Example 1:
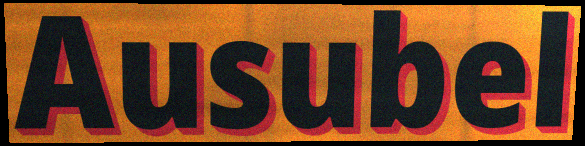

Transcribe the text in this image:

Ausubel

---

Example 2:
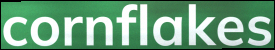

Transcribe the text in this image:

cornflakes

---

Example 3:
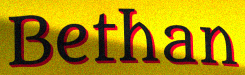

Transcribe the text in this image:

Bethan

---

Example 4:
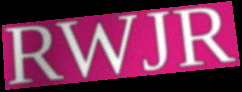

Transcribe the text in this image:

RWJR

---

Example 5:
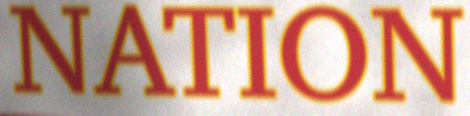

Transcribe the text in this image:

NATION